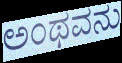
ಅಂಥವನು